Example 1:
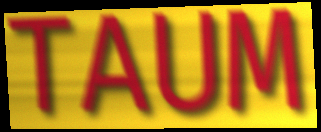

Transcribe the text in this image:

TAUM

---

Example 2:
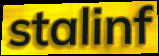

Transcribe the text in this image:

stalinf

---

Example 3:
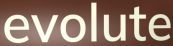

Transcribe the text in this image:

evolute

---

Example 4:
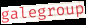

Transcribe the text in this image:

galegroup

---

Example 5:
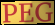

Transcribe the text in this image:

PEG